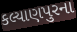
કલ્યાણપુરના